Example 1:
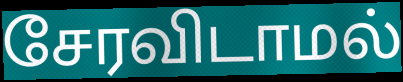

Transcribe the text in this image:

சேரவிடாமல்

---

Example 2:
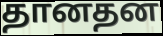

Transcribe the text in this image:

தானதன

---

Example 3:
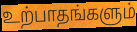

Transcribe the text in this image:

உற்பாதங்களும்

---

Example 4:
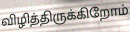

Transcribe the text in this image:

விழித்திருக்கிறோம்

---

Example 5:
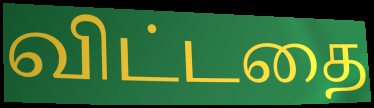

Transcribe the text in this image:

விட்டதை